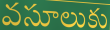
వసూలుకు